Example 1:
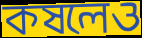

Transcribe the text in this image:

কষলেও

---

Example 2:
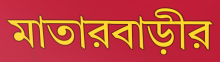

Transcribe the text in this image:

মাতারবাড়ীর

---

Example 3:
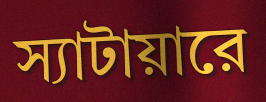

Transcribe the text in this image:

স্যাটায়ারে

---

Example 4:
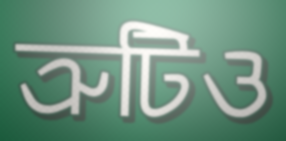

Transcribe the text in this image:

ত্রুটিও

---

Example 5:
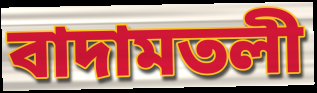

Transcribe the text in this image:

বাদামতলী